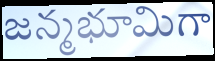
జన్మభూమిగా